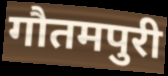
गौतमपुरी